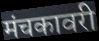
मंचकावरी